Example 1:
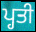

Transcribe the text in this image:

ਪ੍ਹਤੀ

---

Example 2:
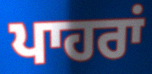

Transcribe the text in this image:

ਪਾਹਰਾਂ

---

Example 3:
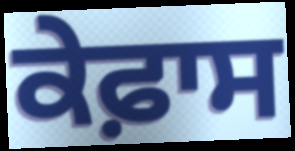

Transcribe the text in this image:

ਕੇਫ਼ਾਸ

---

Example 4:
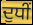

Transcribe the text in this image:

ਦੁਧੀਂ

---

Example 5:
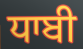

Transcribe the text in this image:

ਧਾਬੀ